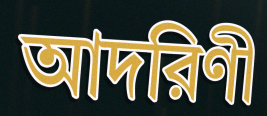
আদরিণী